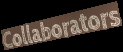
Collaborators